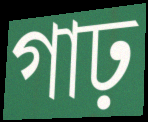
গাঢ়